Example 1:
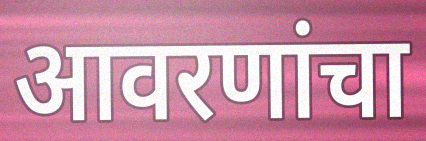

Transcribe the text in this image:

आवरणांचा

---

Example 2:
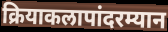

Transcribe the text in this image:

क्रियाकलापांदरम्यान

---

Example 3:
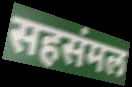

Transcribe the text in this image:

सहसंमल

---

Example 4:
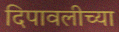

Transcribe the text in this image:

दिपावलीच्या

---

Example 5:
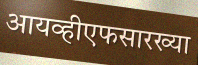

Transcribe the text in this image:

आयव्हीएफसारख्या